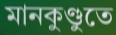
মানকুণ্ডুতে